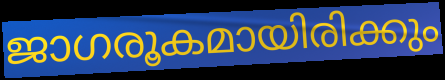
ജാഗരൂകമായിരിക്കും